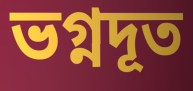
ভগ্নদূত